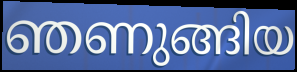
ഞണുങ്ങിയ